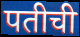
पतीची